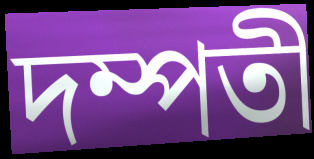
দম্পতী